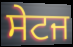
ਸੇਟਜ